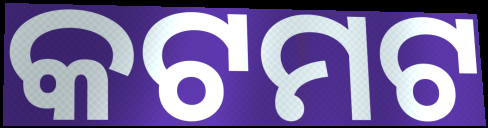
କଟମଟ